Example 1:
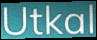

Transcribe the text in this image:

Utkal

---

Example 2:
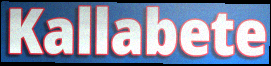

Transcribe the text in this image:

Kallabete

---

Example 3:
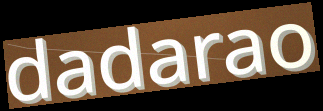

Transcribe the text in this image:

dadarao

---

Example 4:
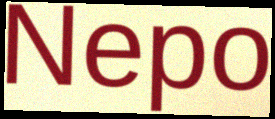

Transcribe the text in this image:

Nepo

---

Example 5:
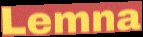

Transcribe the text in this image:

Lemna